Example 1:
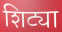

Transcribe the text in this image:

शिट्या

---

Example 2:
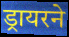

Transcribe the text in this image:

ड्रायरने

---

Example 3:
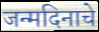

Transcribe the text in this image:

जन्मदिनाचे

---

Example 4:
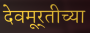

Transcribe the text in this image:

देवमूर्तीच्या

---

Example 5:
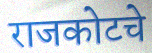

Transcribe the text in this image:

राजकोटचे